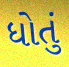
ધોતું